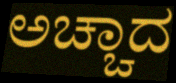
ಅಚ್ಚಾದ